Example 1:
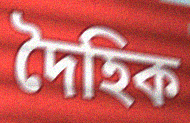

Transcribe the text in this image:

দৈহিক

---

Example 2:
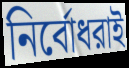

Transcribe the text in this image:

নির্বোধরাই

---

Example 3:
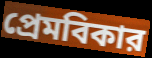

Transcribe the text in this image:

প্রেমবিকার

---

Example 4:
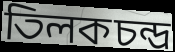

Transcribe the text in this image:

তিলকচন্দ্র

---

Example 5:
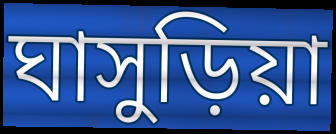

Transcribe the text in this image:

ঘাসুড়িয়া